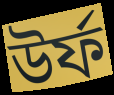
উৰ্ফ